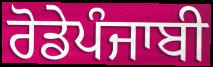
ਰੋਡੇਪੰਜਾਬੀ